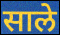
साले